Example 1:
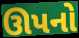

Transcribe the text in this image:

ઊપનો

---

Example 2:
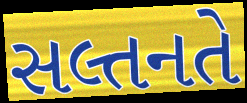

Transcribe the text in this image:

સલ્તનતે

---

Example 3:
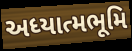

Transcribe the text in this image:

અધ્યાત્મભૂમિ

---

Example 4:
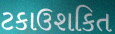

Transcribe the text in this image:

ટકાઉશકિત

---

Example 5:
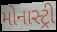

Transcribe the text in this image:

મોનાસ્ટ્રી